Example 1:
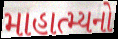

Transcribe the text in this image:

માહાત્મ્યનો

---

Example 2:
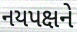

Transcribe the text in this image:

નયપક્ષને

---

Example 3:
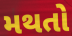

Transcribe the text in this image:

મથતો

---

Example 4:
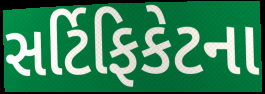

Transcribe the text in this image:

સર્ટિફિકેટના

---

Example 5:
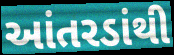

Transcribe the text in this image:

આંતરડાંથી